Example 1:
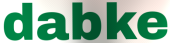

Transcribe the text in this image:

dabke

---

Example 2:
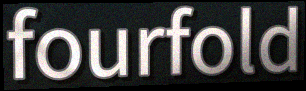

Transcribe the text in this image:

fourfold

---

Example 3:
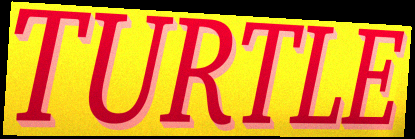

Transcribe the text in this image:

TURTLE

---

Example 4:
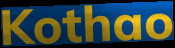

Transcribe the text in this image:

Kothao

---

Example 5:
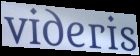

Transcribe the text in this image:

videris